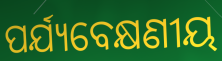
ପର୍ଯ୍ୟବେକ୍ଷଣୀୟ